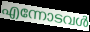
എന്നോടവൾ